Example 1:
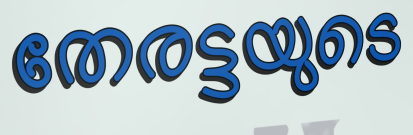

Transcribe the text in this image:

തേരട്ടയുടെ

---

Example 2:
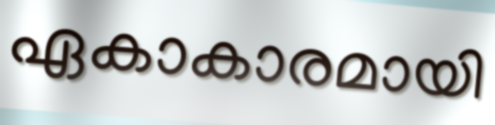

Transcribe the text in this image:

ഏകാകാരമായി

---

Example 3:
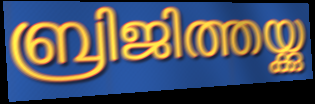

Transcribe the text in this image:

ബ്രിജിത്തയ്ക്കു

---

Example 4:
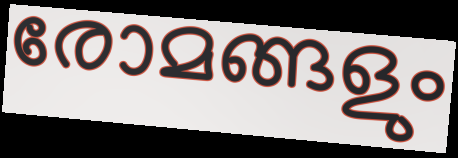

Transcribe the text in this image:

രോമങ്ങളും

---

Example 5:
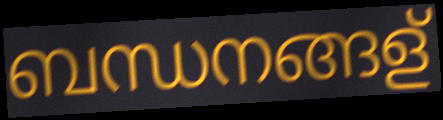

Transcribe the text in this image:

ബന്ധനങ്ങള്